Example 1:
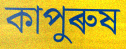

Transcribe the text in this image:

কাপুৰুষ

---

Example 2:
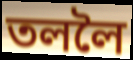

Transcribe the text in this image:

তললৈ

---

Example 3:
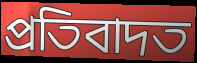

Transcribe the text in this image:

প্ৰতিবাদত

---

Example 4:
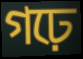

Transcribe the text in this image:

গঢ়ে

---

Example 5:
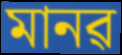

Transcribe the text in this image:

মানৱ